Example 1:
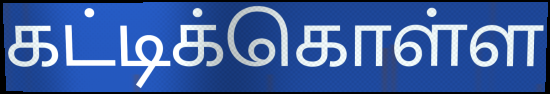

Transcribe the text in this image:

கட்டிக்கொள்ள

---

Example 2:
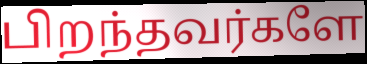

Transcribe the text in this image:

பிறந்தவர்களே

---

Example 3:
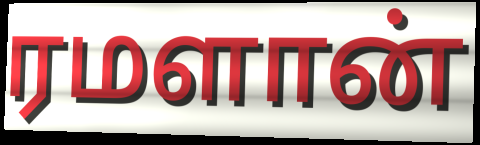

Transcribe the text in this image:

ரமளான்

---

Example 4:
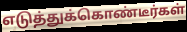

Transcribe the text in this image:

எடுத்துக்கொண்டீர்கள்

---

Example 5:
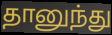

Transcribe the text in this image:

தானுந்து